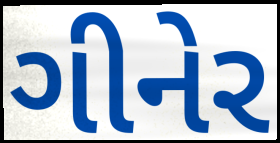
ગીનેર